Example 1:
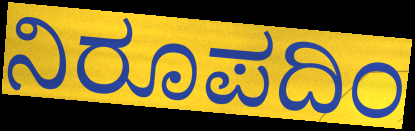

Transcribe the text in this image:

ನಿರೂಪದಿಂ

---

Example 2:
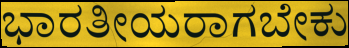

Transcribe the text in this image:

ಭಾರತೀಯರಾಗಬೇಕು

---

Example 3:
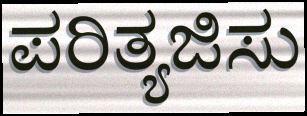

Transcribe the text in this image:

ಪರಿತ್ಯಜಿಸು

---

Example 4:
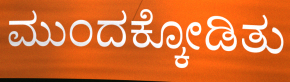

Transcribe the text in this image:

ಮುಂದಕ್ಕೋಡಿತು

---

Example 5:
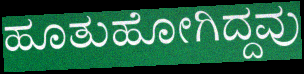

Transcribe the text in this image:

ಹೂತುಹೋಗಿದ್ದವು